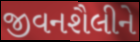
જીવનશૈલીને